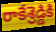
రాకేశ్రెడ్డికి